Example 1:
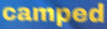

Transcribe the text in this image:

camped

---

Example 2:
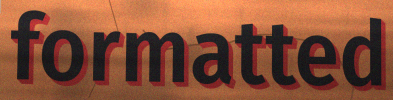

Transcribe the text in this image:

formatted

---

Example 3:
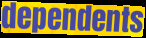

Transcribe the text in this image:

dependents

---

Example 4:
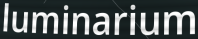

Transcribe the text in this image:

luminarium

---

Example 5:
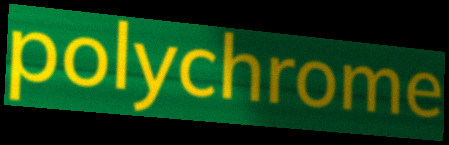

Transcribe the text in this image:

polychrome